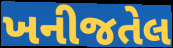
ખનીજતેલ